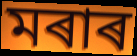
মৰাৰ